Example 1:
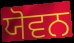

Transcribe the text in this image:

ਯੋਵਨ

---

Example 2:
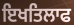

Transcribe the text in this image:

ਇਖਤਿਲਾਫ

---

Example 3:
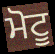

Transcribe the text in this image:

ਮੋਟੂ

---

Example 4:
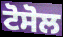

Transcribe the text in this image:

ਟੋਸੋਲ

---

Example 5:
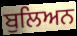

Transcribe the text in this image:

ਬੁਲਿਅਨ